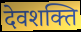
देवशक्ति